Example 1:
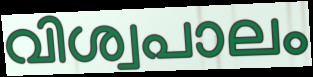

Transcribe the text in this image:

വിശ്വപാലം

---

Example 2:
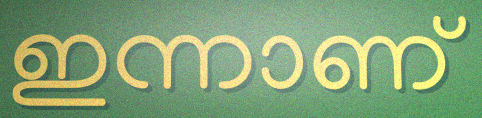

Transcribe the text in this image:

ഇന്നാണ്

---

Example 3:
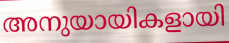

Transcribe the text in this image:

അനുയായികളായി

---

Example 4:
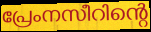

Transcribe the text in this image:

പ്രേംനസീറിന്റെ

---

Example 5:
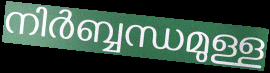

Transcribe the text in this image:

നിർബ്ബന്ധമുള്ള